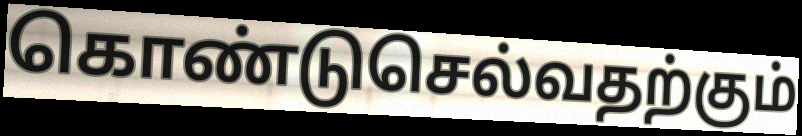
கொண்டுசெல்வதற்கும்